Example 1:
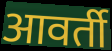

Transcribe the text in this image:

आवर्ती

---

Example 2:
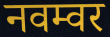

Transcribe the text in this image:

नवम्वर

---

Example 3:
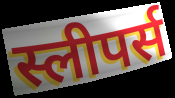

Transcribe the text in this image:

स्लीपर्स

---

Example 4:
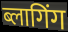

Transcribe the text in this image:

ब्लागिंग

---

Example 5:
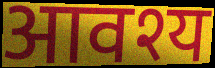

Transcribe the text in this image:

आवश्य